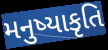
મનુષ્યાકૃતિ